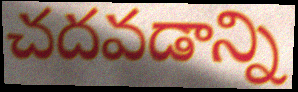
చదవడాన్ని